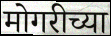
मोगरीच्या